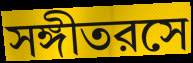
সঙ্গীতরসে